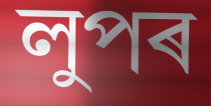
লুপৰ